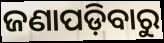
ଜଣାପଡ଼ିବାରୁ